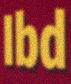
Ibd